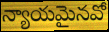
న్యాయమైనవో